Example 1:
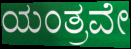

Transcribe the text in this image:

ಯಂತ್ರವೇ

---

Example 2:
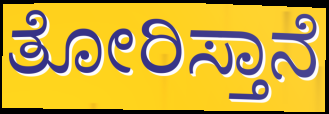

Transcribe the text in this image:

ತೋರಿಸ್ತಾನೆ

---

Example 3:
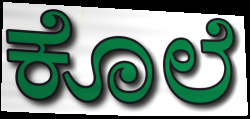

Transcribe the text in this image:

ಕೊಲೆ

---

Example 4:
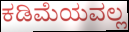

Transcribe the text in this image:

ಕಡಿಮೆಯವಲ್ಲ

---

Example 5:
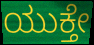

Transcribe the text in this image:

ಯುಕ್ತೇ